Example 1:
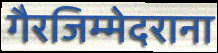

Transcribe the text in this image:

गैरजिम्मेदराना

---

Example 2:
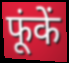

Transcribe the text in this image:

फूंकें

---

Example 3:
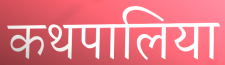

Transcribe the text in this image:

कथपालिया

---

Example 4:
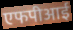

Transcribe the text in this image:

एफपीआई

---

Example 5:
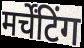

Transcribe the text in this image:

मर्चेंटिंग